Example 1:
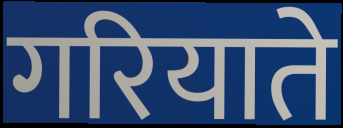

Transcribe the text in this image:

गरियाते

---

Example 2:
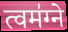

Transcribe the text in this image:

त्वम॑ग्ने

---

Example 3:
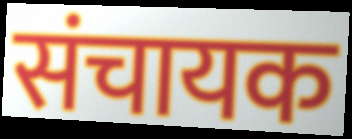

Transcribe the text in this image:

संचायक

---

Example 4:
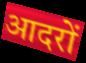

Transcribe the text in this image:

आदरों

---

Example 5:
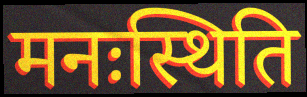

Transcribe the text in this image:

मनःस्थिति